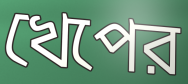
খেপের